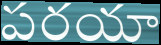
పరయా